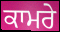
ਕਾਮਰੇ